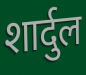
शार्दुल